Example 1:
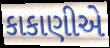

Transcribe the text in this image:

કાકાણીએ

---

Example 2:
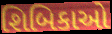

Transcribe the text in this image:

શિબિકાઓ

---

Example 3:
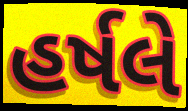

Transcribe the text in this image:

હર્ષલે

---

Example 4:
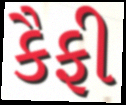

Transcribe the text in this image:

કૈફી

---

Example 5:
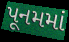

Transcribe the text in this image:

પૂનમમાં